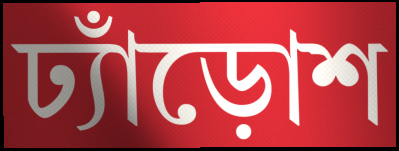
ঢ্যাঁড়োশ